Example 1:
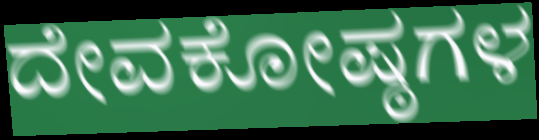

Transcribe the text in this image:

ದೇವಕೋಷ್ಠಗಳ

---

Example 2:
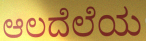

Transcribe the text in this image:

ಆಲದೆಲೆಯ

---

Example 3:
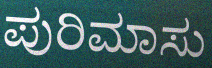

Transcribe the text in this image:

ಪುರಿಮಾಸು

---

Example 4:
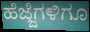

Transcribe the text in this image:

ಹೆಜ್ಜೆಗಳಿಗೂ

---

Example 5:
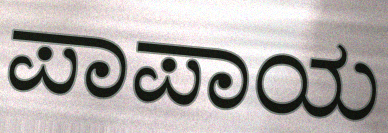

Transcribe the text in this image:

ಪಾಪಾಯ